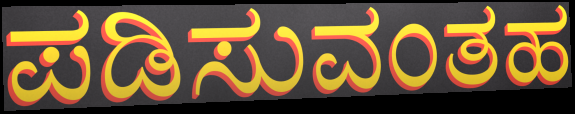
ಪಡಿಸುವಂತಹ